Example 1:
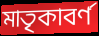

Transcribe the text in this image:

মাতৃকাবর্ণ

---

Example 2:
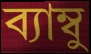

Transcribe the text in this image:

ব্যাম্বু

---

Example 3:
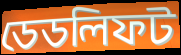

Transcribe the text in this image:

ডেডলিফট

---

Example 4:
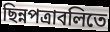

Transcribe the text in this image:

ছিন্নপত্রাবলিতে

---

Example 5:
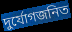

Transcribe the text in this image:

দুর্যোগজনিত